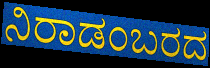
ನಿರಾಡಂಬರದ